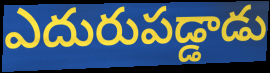
ఎదురుపడ్డాడు